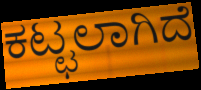
ಕಟ್ಟಲಾಗಿದೆ